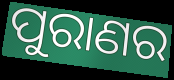
ପୁରାଣର